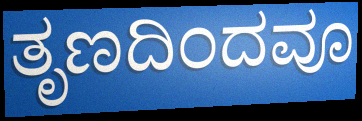
ತೃಣದಿಂದವೂ